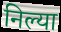
निल्या